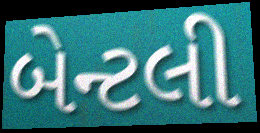
બેન્ટલી